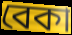
বেকা